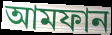
আমফান